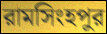
রামসিংহপুর